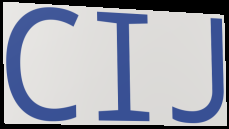
CIJ